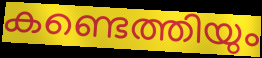
കണ്ടെത്തിയും